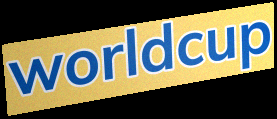
worldcup